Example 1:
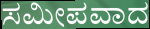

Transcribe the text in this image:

ಸಮೀಪವಾದ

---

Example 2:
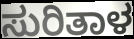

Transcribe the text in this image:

ಸುರಿತಾಳ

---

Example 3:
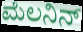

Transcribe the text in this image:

ಮೆಲನಿನ್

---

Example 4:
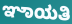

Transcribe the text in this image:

ಞಾಯತಿ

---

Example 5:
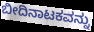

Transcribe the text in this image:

ಬೀದಿನಾಟಕವನ್ನು